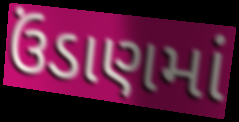
ઉંડાણમાં